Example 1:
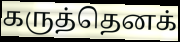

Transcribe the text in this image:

கருத்தெனக்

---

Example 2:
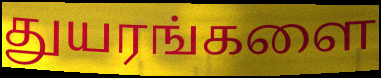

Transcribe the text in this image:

துயரங்களை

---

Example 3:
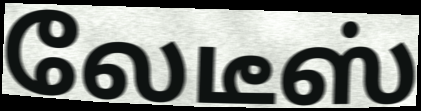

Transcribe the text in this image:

லேடீஸ்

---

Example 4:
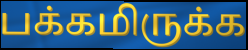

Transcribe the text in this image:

பக்கமிருக்க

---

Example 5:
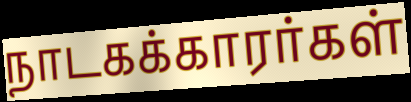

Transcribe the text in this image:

நாடகக்காரர்கள்